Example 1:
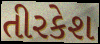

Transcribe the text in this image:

તીરકેશ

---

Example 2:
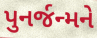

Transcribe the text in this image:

પુનર્જન્મને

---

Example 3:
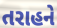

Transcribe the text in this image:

તરાહને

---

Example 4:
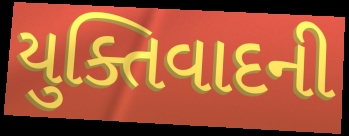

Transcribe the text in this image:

યુક્તિવાદની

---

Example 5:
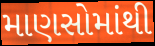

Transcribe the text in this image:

માણસોમાંથી